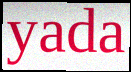
yada